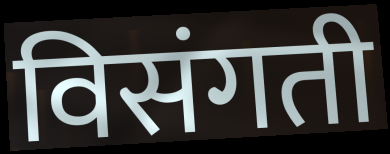
विसंगती